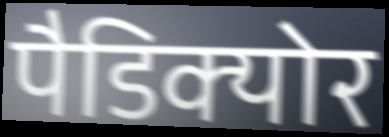
पैडिक्योर